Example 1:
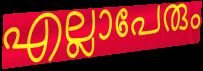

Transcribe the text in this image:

എല്ലാപേരും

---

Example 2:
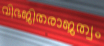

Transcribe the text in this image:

വിഭജിതരാജത്വം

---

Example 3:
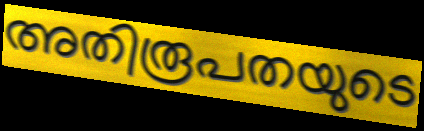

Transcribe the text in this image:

അതിരൂപതയുടെ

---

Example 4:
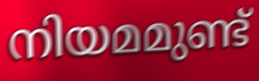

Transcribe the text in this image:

നിയമമുണ്ട്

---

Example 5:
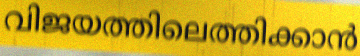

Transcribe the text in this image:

വിജയത്തിലെത്തിക്കാൻ